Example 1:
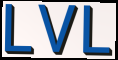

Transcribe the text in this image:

LVL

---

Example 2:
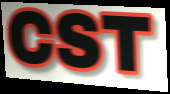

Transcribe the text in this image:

CST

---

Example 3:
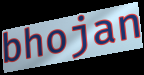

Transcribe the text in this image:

bhojan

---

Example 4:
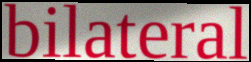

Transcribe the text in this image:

bilateral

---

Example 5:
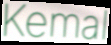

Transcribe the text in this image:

Kemal